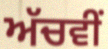
ਅੱਚਵੀਂ